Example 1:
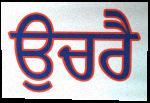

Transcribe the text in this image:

ਉਚਰੈ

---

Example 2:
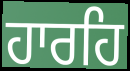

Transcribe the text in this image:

ਹਾਰਹਿ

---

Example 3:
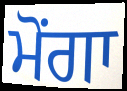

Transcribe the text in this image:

ਮੋਂਗਾ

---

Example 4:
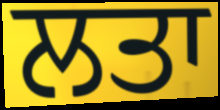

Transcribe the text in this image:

ਲਤਾ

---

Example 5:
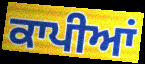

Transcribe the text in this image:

ਕਾਪੀਆਂ